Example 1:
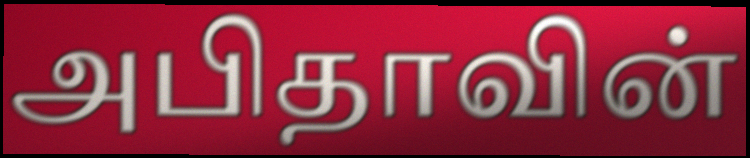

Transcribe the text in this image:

அபிதாவின்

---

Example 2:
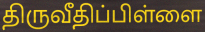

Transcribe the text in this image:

திருவீதிப்பிள்ளை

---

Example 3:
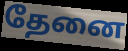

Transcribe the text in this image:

தேனை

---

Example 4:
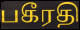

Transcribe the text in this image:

பகீரதி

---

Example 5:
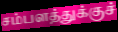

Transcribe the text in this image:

சம்பளத்துக்குச்